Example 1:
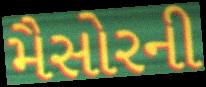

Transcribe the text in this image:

મૈસોરની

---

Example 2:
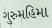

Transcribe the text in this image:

ગુરુમહિમા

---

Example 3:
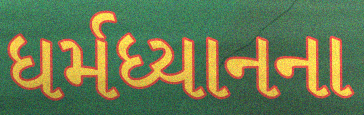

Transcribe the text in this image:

ધર્મધ્યાનના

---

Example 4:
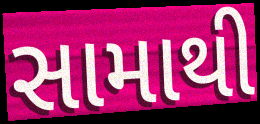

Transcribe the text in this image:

સામાથી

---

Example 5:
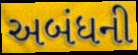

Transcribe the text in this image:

અબંધની